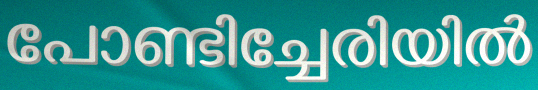
പോണ്ടിച്ചേരിയിൽ